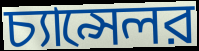
চ্যান্সেলর